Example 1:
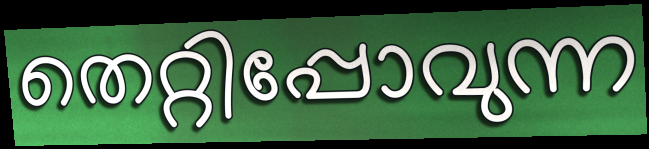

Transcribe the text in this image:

തെറ്റിപ്പോവുന്ന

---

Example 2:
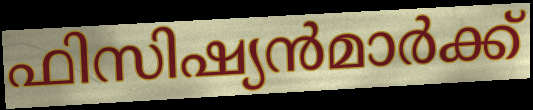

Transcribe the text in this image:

ഫിസിഷ്യൻമാർക്ക്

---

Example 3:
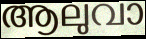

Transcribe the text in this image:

ആലുവാ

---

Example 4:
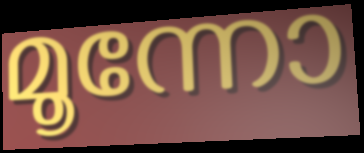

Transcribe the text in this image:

മൂന്നോ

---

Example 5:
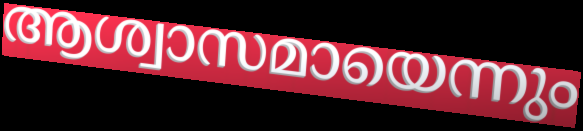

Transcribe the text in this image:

ആശ്വാസമായെന്നും